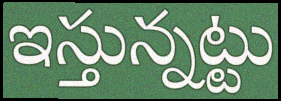
ఇస్తున్నట్టు